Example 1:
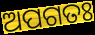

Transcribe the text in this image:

ଅପଗତଃ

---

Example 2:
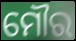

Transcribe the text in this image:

ମୌର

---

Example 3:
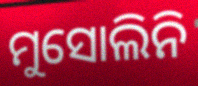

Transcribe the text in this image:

ମୁସୋଲିନି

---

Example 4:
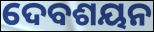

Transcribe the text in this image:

ଦେବଶୟନ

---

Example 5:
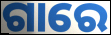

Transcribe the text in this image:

ଗାରେ